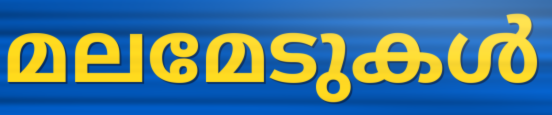
മലമേടുകൾ